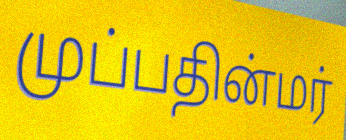
முப்பதின்மர்